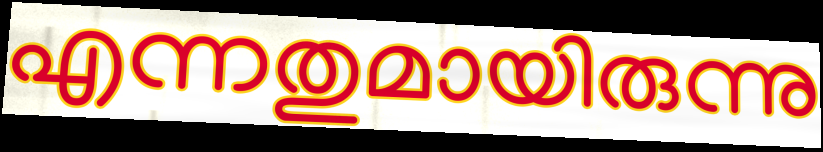
എന്നതുമായിരുന്നു